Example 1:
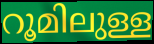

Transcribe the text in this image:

റൂമിലുള്ള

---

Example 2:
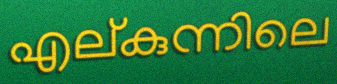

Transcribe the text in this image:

എല്കുന്നിലെ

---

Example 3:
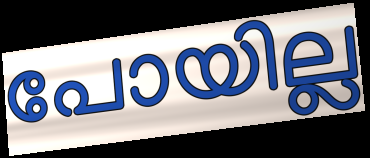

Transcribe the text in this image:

പോയില്ല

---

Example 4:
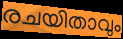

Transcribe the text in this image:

രചയിതാവും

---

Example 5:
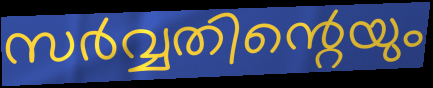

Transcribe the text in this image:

സർവ്വതിന്റെയും